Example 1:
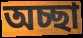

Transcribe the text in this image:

অচ্ছা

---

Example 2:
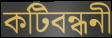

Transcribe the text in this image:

কটিবন্ধনী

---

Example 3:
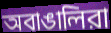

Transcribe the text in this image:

অবাঙালিরা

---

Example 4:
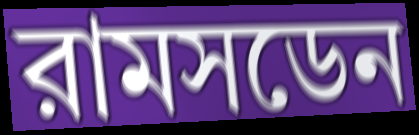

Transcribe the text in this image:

রামসডেন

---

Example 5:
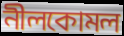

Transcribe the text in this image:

নীলকোমল